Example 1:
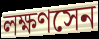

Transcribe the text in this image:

লক্ষণসেন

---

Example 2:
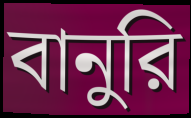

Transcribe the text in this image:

বানুরি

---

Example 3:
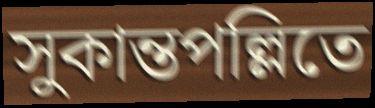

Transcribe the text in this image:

সুকান্তপল্লিতে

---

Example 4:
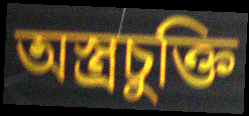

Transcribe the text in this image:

অস্ত্রচুক্তি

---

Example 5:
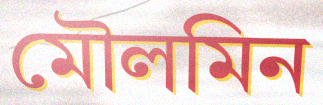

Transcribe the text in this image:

মৌলমিন